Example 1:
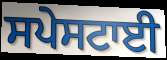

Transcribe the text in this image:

ਸਪੇਸਟਾਈ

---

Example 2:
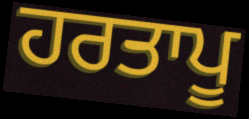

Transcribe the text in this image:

ਹਰਤਾਪੂ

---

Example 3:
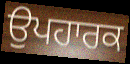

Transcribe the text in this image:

ਉਪਹਾਰਕ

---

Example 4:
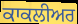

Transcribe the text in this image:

ਕਾਕਲੀਅਰ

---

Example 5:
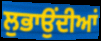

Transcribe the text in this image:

ਲੁਭਾਉਂਦੀਆਂ